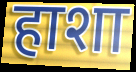
हाशा